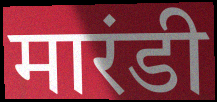
मारंडी